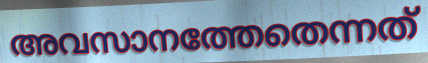
അവസാനത്തേതെന്നത്